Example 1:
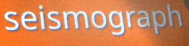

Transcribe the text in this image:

seismograph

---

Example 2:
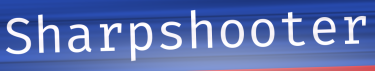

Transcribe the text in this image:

Sharpshooter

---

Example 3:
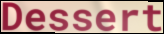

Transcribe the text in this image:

Dessert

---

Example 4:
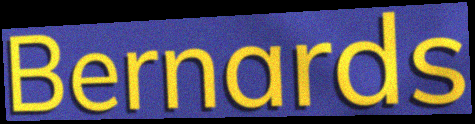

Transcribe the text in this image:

Bernards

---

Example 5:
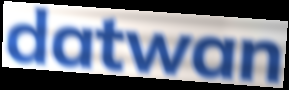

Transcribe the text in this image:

datwan